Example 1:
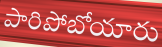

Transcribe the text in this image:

పారిపోబోయారు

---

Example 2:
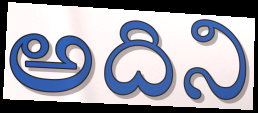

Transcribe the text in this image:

అదిని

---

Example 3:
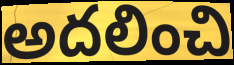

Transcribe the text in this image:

అదలించి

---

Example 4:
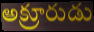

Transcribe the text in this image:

అక్రూరుడు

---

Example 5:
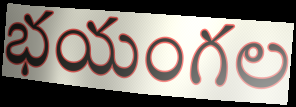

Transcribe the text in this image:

భయంగల